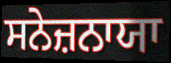
ਸਨੇਜ਼ਨਾਯਾ